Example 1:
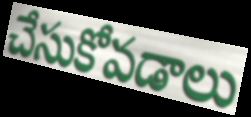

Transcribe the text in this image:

చేసుకోవడాలు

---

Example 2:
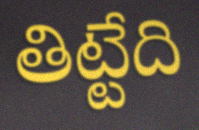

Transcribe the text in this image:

తిట్టేది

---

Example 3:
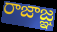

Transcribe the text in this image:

రాజాజ్ఞ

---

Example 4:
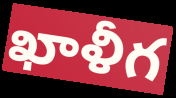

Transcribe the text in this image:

ఖాళీగ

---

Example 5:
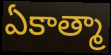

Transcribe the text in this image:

ఏకాత్మా